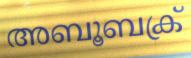
അബൂബക്ര്